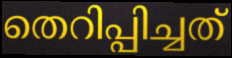
തെറിപ്പിച്ചത്